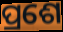
ପ୍ରଶେ